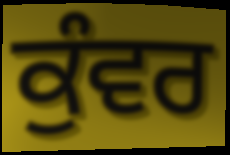
ਕੁੰਵਰ